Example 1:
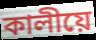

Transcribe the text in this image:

কালীয়ে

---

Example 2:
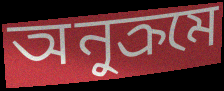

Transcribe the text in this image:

অনুক্ৰমে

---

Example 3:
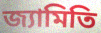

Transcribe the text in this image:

জ্যামিতি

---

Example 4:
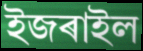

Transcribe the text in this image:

ইজৰাইল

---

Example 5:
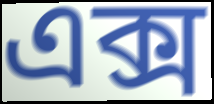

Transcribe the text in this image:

এক্স